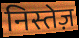
निस्तेज़